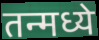
तन्मध्ये